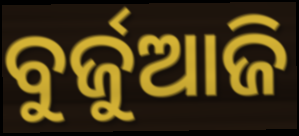
ବୁର୍ଜୁଆଜି